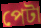
পেটা